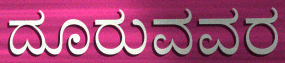
ದೂರುವವರ